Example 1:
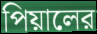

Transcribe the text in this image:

পিয়ালের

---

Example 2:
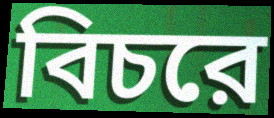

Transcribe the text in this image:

বিচরে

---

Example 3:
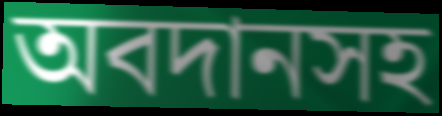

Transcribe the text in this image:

অবদানসহ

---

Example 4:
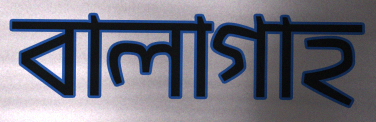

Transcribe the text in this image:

বালাগাহ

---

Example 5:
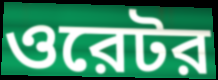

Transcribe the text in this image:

ওরেটর